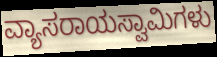
ವ್ಯಾಸರಾಯಸ್ವಾಮಿಗಳು